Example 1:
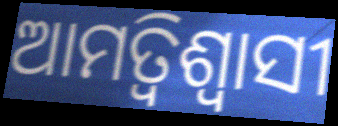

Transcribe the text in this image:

ଆମତ୍ବିଶ୍ୱାସୀ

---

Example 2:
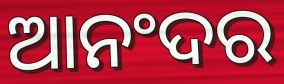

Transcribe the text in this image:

ଆନଂଦର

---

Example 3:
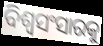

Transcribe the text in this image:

ବିଶ୍ୱସଂସାରକୁ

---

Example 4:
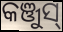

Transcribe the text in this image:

କଞ୍ଜୁସ୍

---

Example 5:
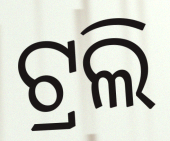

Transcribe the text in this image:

ଟ୍ରଲି